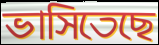
ভাসিতেছে